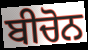
ਬੀਚੋਨ